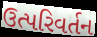
ઉત્પરિવર્તન